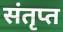
संतृप्त